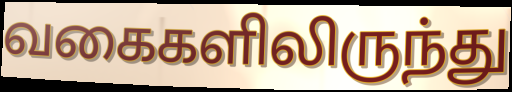
வகைகளிலிருந்து